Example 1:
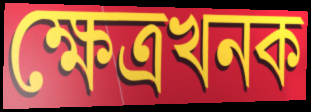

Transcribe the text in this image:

ক্ষেত্ৰখনক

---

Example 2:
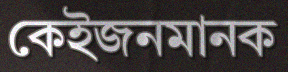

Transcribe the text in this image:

কেইজনমানক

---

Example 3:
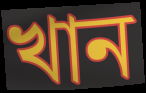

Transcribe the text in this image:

খান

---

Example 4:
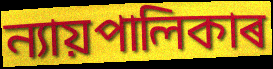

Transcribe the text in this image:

ন্যায়পালিকাৰ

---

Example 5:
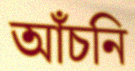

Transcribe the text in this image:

আঁচনি